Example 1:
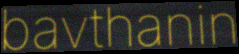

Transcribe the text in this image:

bavthanin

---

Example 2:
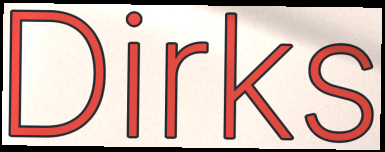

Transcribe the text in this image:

Dirks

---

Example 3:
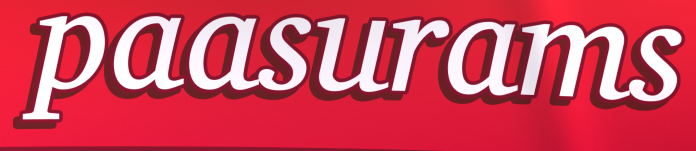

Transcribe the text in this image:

paasurams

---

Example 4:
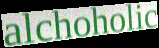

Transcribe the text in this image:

alchoholic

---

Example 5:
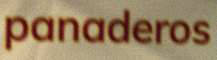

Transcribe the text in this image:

panaderos